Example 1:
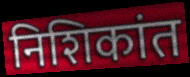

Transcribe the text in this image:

निशिकांत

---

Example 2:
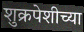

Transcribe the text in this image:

शुक्रपेशीच्या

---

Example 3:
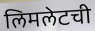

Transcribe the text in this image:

लिमलेटची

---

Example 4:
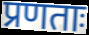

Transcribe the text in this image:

प्रणताः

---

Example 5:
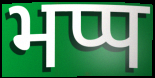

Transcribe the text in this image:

भप्प